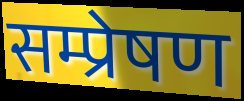
सम्प्रेषण